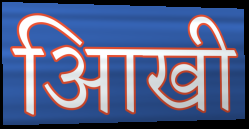
आिखी